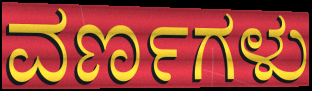
ವರ್ಣಗಳು